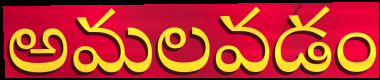
అమలవడం